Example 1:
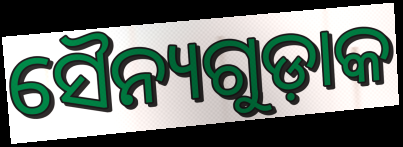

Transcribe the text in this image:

ସୈନ୍ୟଗୁଡ଼ାକ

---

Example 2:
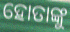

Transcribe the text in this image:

ହୋତାଙ୍କୁ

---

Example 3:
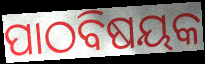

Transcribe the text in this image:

ପାଠବିଷୟକ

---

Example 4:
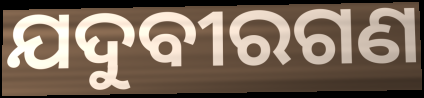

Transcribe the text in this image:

ଯଦୁବୀରଗଣ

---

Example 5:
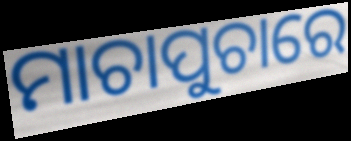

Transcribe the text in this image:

ମାଚାପୁଚାରେ